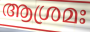
ആശ്രമഃ